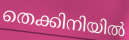
തെക്കിനിയിൽ